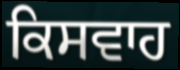
ਕਿਸਵਾਹ